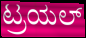
ಟ್ರಯಲ್